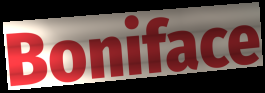
Boniface